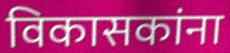
विकासकांना